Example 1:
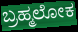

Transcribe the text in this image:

ಬ್ರಹ್ಮಲೋಕ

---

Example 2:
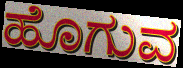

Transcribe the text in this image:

ಹೊಗುವ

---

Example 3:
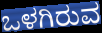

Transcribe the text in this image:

ಒಳಗಿರುವ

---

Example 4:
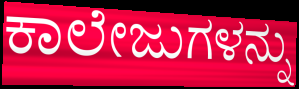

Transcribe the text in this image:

ಕಾಲೇಜುಗಳನ್ನು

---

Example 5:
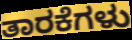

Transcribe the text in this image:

ತಾರಕೆಗಳು